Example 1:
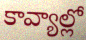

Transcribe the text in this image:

కావ్యాల్లో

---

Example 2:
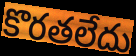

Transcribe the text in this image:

కొరతలేదు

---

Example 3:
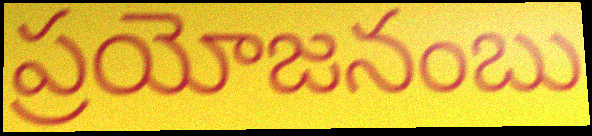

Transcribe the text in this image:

ప్రయోజనంబు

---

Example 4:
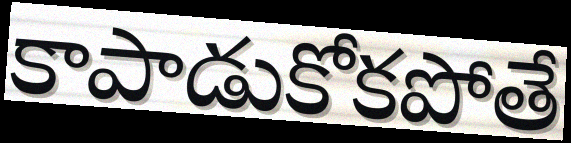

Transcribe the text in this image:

కాపాడుకోకపోతే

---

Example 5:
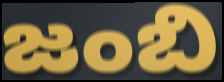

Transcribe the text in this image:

జంబి